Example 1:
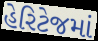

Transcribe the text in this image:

હેરિટેજમાં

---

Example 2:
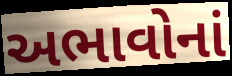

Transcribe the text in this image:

અભાવોનાં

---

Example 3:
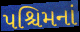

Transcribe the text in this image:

પશ્ચિમનાં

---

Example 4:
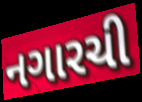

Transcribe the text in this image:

નગારચી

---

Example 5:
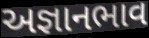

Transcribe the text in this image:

અજ્ઞાનભાવ